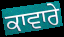
ਕਾਵਾਰੇ